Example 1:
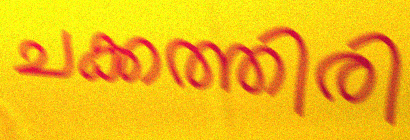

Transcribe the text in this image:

ചക്കത്തിരി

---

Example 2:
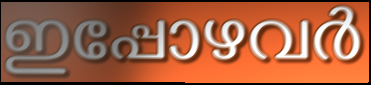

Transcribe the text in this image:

ഇപ്പോഴവർ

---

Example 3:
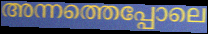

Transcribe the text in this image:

അന്നത്തെപ്പോലെ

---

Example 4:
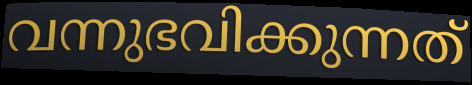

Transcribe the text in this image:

വന്നുഭവിക്കുന്നത്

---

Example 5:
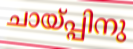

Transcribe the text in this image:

ചായ്പ്പിനു